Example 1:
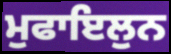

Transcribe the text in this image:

ਮੁਫਾਇਲੁਨ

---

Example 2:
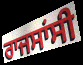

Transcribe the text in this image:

ਰਾਜਸਾਂਸੀ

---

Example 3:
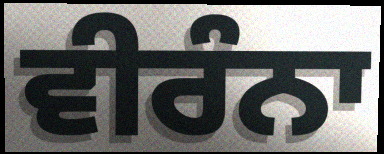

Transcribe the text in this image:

ਵੀਰੰਨਾ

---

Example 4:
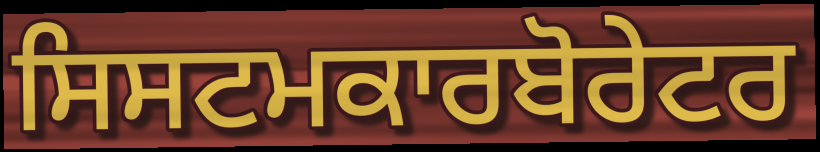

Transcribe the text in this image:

ਸਿਸਟਮਕਾਰਬੋਰੇਟਰ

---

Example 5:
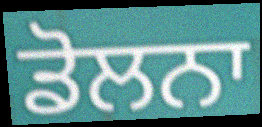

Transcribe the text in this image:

ਡੋਲਨਾ